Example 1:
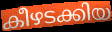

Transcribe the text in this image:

കീഴടക്കിയ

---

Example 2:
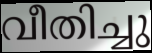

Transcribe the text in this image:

വീതിച്ചു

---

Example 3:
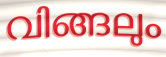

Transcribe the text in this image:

വിങ്ങലും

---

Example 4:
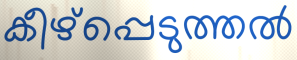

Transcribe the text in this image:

കീഴ്പ്പെടുത്തൽ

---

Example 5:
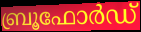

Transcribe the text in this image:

ബ്രൂഫോർഡ്